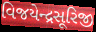
વિજયેન્દ્રસૂરિજી